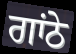
ਗਾਂਠੇ